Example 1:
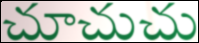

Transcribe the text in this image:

చూచుచు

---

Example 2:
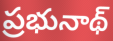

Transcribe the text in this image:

ప్రభునాథ్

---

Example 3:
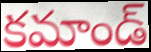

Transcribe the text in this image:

కమాండ్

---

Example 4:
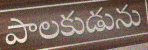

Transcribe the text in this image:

పాలకుడును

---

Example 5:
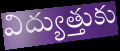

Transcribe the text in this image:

విద్యుత్తుకు